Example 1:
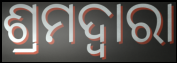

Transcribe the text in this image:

ଶ୍ରମଦ୍ୱାରା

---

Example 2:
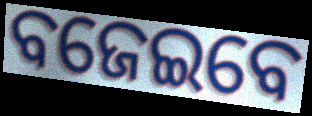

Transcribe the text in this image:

ବଜେଇବେ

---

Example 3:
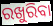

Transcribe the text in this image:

ରଖୁରିବା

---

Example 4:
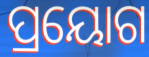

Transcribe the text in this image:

ପ୍ରୟୋଗ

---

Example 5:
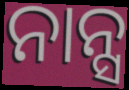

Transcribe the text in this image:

ନାନ୍ସ